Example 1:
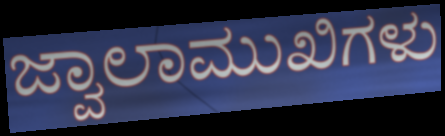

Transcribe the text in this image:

ಜ್ವಾಲಾಮುಖಿಗಳು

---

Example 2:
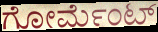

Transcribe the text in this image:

ಗೋರ್ಮೆಂಟ್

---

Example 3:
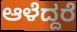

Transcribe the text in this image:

ಆಳೆದ್ದರೆ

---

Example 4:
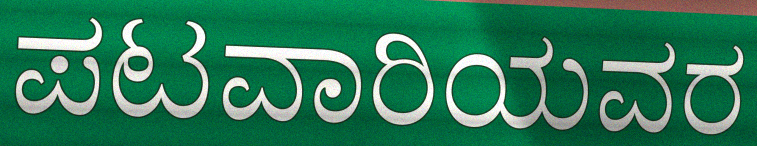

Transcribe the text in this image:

ಪಟವಾರಿಯವರ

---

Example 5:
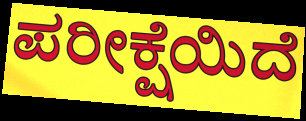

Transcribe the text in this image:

ಪರೀಕ್ಷೆಯಿದೆ